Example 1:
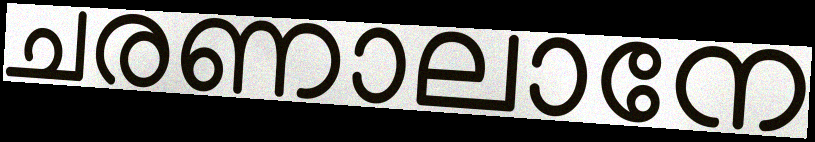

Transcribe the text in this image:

ചരണാലാനേ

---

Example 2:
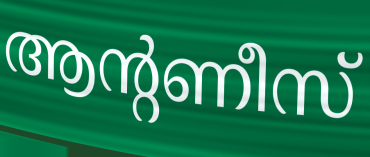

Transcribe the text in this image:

ആന്റണീസ്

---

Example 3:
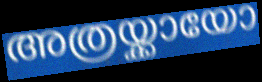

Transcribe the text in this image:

അത്രയ്ക്കായോ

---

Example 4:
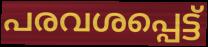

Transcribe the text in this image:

പരവശപ്പെട്ട്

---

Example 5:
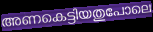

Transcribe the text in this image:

അണകെട്ടിയതുപോലെ